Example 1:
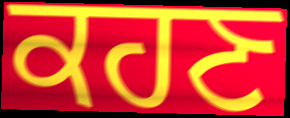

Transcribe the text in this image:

ਕਹਣ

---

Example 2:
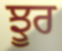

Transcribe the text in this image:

ਝੂਰ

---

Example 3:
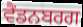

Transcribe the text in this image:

ਵੈਂਡਨਬਰਗ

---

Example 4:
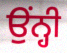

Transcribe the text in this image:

ਉਂਨ੍ਹੀ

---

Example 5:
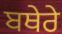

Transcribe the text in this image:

ਬਥੇਰੇ